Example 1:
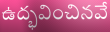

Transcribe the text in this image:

ఉద్భవించినవే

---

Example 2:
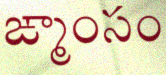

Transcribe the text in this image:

ఙ్మాంసం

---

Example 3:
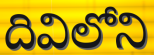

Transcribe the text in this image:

దివిలోని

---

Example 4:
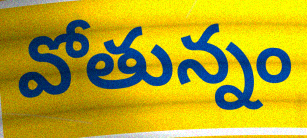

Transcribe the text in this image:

వోతున్నం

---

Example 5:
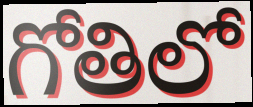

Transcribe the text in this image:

గోతిలో